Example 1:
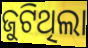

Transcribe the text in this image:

ଜୁଟିଥିଲା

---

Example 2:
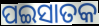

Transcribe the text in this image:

ପଇସାତକ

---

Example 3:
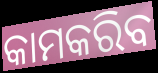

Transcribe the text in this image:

କାମକରିବ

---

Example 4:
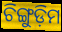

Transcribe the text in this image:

ଚିଙ୍ଗୁଡ଼ିମ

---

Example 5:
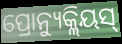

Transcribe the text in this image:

ପ୍ରୋନ୍ୟୁକ୍ଲିୟସ୍